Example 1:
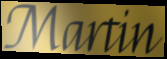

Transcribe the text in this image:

Martin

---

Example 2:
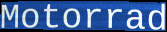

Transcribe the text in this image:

Motorrad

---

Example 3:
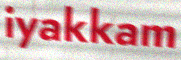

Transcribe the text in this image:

iyakkam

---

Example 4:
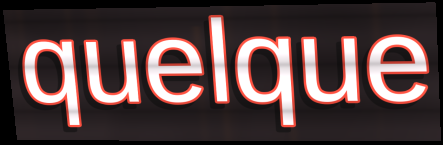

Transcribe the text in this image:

quelque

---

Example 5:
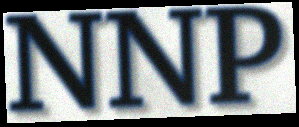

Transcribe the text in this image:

NNP